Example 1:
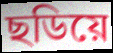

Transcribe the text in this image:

ছডিয়ে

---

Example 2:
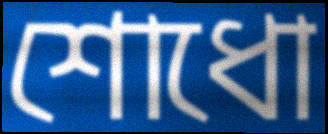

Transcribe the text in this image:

শোধো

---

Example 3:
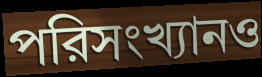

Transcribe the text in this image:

পরিসংখ্যানও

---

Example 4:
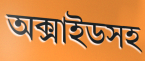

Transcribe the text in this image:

অক্সাইডসহ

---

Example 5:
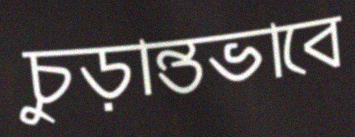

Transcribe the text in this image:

চুড়ান্তভাবে